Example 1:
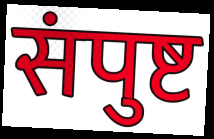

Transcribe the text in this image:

संपुष्ट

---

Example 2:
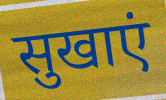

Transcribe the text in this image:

सुखाएं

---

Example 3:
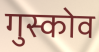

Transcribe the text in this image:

गुस्कोव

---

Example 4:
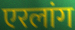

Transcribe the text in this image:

एरलांग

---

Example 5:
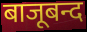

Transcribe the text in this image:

बाजूबन्द